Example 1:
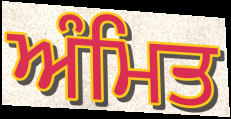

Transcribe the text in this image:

ਅੰਮਿਤ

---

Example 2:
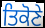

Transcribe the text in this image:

ਤਿਕੋਣੇ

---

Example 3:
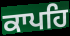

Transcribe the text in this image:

ਕਾਪਹਿ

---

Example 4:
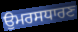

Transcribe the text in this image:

ਉਮਰਸਧਾਰਣ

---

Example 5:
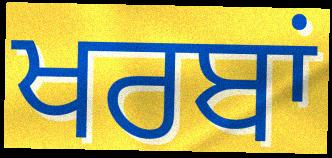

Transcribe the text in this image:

ਖਰਬਾਂ